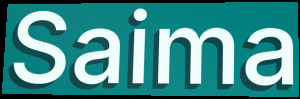
Saima